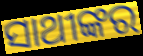
ସାଥୀଙ୍କର